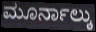
ಮೂರ್ನಾಲ್ಕು